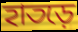
হাতড়ে